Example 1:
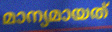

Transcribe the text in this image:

മാന്യമായത്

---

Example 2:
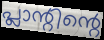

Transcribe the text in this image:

പ്ലാന്റിന്റെ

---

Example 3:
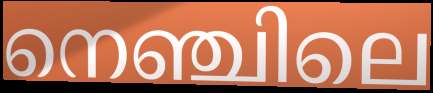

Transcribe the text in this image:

നെഞ്ചിലെ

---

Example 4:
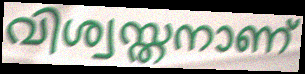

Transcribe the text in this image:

വിശ്വസ്തനാണ്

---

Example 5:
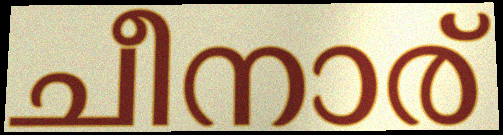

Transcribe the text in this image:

ചീനാര്